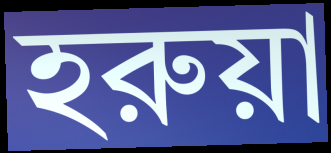
হরুয়া